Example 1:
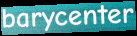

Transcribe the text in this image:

barycenter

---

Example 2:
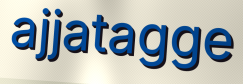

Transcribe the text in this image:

ajjatagge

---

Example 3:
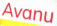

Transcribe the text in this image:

Avanu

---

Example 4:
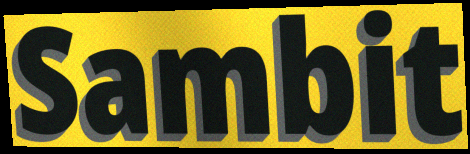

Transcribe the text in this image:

Sambit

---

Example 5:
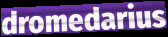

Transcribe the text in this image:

dromedarius